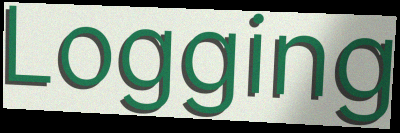
Logging